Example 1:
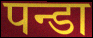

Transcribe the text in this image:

पन्डा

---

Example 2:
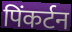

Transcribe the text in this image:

पिंकर्टन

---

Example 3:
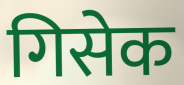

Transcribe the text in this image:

गिसेक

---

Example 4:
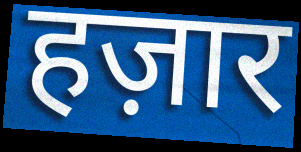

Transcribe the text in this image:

हज़ार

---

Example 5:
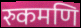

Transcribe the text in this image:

रुकमणि